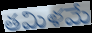
తమిళమే